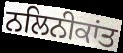
ਨਲਿਨੀਕਾਂਤ